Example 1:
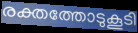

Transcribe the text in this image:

രക്തത്തോടുകൂടി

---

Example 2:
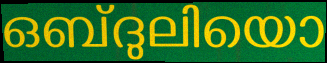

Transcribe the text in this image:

ഒബ്ദുലിയൊ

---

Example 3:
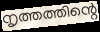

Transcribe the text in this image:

നൃത്തത്തിന്റെ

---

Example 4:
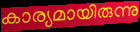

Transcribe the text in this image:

കാര്യമായിരുന്നു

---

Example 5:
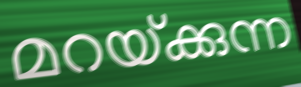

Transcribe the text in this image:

മറയ്‌ക്കുന്ന